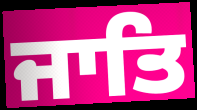
ਜਾਤਿ